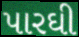
પારઘી